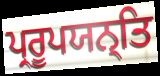
ਪ੍ਰਰੂਪਯਨ੍ਤਿ